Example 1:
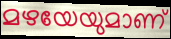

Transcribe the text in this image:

മഴയേയുമാണ്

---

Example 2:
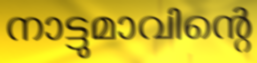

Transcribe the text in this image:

നാട്ടുമാവിന്റെ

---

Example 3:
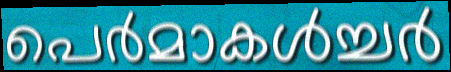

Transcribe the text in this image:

പെർമാകൾച്ചർ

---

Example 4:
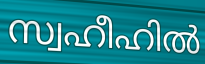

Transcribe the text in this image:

സ്വഹീഹിൽ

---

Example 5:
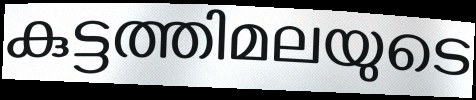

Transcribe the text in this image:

കുട്ടത്തിമലയുടെ